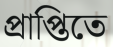
প্রাপ্তিতে